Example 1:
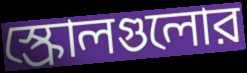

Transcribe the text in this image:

স্ক্রোলগুলোর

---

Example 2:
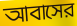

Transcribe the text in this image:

আবাসের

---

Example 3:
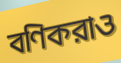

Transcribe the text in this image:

বণিকরাও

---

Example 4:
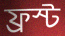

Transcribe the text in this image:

ফ্রস্ট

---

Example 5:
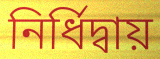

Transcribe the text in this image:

নির্ধিদ্বায়